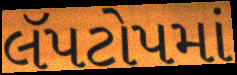
લૅપટોપમાં